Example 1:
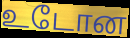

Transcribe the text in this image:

உடோன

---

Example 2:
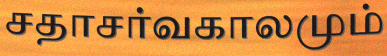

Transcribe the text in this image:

சதாசர்வகாலமும்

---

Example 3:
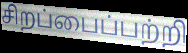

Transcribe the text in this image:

சிறப்பைப்பற்றி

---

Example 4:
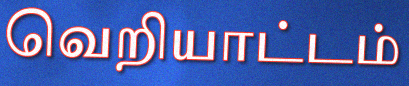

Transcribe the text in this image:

வெறியாட்டம்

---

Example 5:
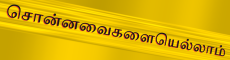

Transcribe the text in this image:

சொன்னவைகளையெல்லாம்